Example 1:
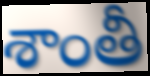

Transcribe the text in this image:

శాంతీ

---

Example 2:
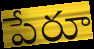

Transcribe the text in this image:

పేరూ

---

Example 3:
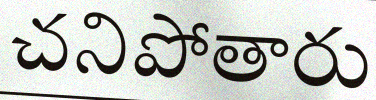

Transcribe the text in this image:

చనిపోతారు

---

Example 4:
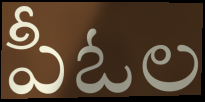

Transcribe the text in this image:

పీఓల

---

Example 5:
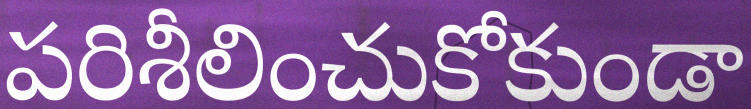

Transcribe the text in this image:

పరిశీలించుకోకుండా